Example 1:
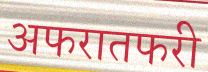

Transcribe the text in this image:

अफरातफरी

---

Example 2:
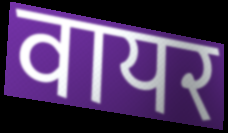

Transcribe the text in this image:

वायर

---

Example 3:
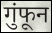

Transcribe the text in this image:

गुंफून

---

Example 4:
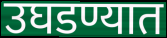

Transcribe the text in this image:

उघडण्यात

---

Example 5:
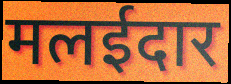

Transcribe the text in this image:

मलईदार